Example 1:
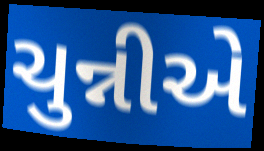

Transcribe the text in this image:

ચુન્નીએ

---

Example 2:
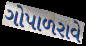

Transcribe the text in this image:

ગોપાળરાવે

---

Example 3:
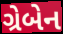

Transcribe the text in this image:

ગ્રેબેન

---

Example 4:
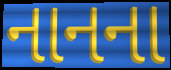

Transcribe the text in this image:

નાનના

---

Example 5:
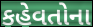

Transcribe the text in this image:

કહેવતોના